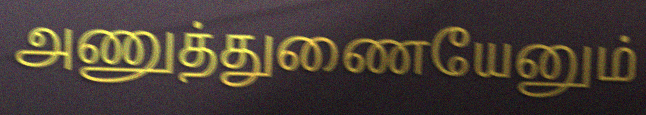
அணுத்துணையேனும்